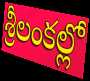
శ్రీలంకల్లో